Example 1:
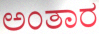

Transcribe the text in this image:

ಅಂತಾರ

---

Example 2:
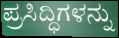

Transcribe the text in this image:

ಪ್ರಸಿದ್ಧಿಗಳನ್ನು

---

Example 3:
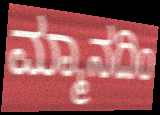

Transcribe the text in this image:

ಮ್ಮಾನದಿಂ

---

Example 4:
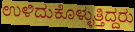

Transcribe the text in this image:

ಉಳಿದುಕೊಳ್ಳುತ್ತಿದ್ದರು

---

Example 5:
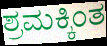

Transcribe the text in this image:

ಶ್ರಮಕ್ಕಿಂತ